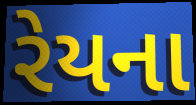
રેયના